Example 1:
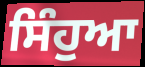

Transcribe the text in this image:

ਸਿੰਹੁਆ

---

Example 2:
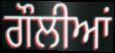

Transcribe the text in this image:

ਗੌਲੀਆਂ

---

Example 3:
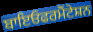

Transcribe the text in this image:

ਬਾਇਓਫਰਮੈਂਟੇਸ਼ਨ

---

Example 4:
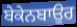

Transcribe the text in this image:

ਬੇਕੇਨਬਾਉਰ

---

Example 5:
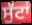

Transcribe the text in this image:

ਸੁੱਟਾਂ